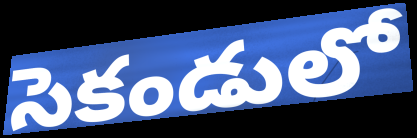
సెకండులో